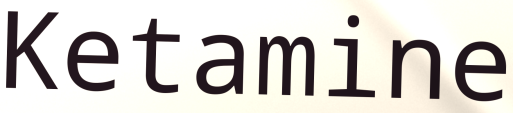
Ketamine